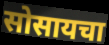
सोसायचा